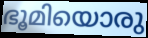
ഭൂമിയൊരു